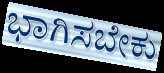
ಭಾಗಿಸಬೇಕು